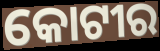
କୋଟୀର